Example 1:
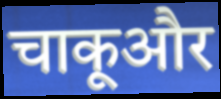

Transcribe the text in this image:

चाकूऔर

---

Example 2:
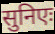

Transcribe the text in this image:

सुनिएः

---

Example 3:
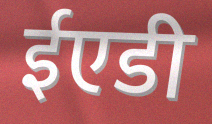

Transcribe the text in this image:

ईएडी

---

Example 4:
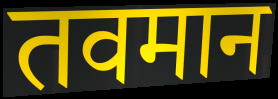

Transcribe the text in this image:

तवमान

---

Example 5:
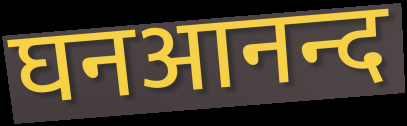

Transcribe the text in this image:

घनआनन्द